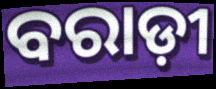
ବରାଡ଼ୀ